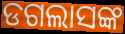
ଡଗଲାସଙ୍କ